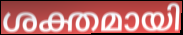
ശക്തമായി